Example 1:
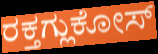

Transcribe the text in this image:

ರಕ್ತಗ್ಲುಕೋಸ್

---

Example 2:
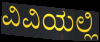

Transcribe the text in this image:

ವಿವಿಯಲ್ಲಿ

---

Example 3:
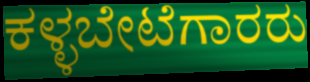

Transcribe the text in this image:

ಕಳ್ಳಬೇಟೆಗಾರರು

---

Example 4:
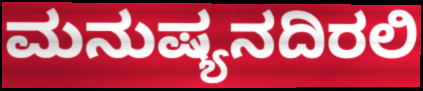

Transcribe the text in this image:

ಮನುಷ್ಯನದಿರಲಿ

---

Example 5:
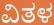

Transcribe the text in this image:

ವಿತಳ